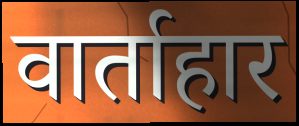
वार्ताहार